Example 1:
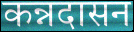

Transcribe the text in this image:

कन्नदासन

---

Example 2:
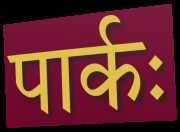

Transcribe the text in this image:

पार्कः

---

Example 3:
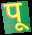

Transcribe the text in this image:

पू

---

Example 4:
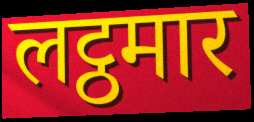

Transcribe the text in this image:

लट्ठमार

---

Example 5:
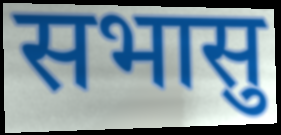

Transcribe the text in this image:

सभासु